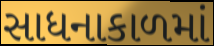
સાધનાકાળમાં